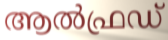
ആൽഫ്രഡ്